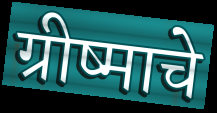
ग्रीष्माचे